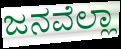
ಜನವೆಲ್ಲಾ